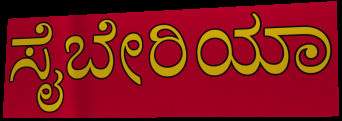
ಸೈಬೇರಿಯಾ